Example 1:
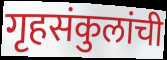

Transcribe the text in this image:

गृहसंकुलांची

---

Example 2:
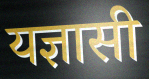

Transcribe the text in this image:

यज्ञासी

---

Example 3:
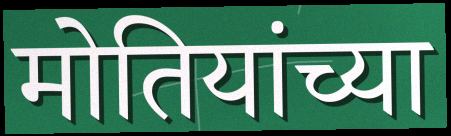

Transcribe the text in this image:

मोतियांच्या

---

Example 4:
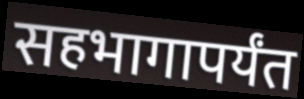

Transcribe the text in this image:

सहभागापर्यंत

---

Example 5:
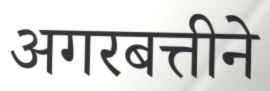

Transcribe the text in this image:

अगरबत्तीने